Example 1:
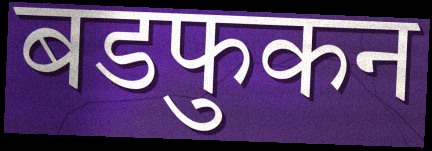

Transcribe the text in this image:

बडफुकन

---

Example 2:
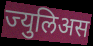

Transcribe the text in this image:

ज्युलिअस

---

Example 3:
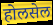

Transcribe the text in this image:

होलसेल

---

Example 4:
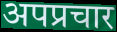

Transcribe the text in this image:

अपप्रचार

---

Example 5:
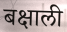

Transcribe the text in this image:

बक्षाली